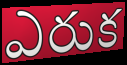
ఎరుక